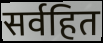
सर्वहित